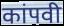
कांपवी